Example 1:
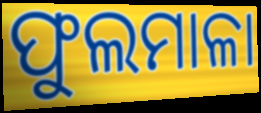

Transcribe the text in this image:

ଫୁଲମାଳା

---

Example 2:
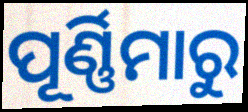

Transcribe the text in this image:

ପୂର୍ଣ୍ଣିମାରୁ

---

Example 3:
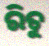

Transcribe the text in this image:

ରିତୁ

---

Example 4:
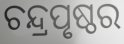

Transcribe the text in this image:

ଚନ୍ଦ୍ରପୃଷ୍ଠର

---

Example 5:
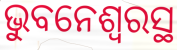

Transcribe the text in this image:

ଭୁବନେଶ୍ଵରସ୍ଥ